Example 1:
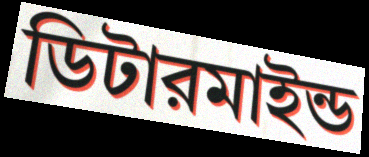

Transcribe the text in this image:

ডিটারমাইন্ড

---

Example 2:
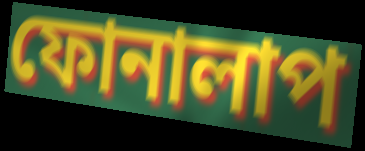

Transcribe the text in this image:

ফোনালাপ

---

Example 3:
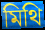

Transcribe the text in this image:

মিথি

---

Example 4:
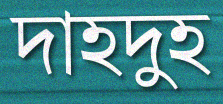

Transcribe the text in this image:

দাহদুহ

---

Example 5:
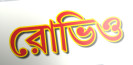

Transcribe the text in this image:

রোভিও